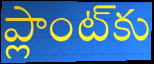
ప్లాంట్‌కు